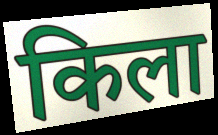
किला